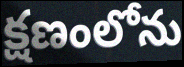
క్షణంలోను